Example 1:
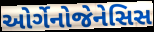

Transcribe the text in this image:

ઓર્ગેનોજેનેસિસ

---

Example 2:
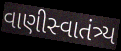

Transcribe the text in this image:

વાણીસ્વાતંત્ર્ય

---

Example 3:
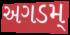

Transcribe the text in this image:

અગડમ્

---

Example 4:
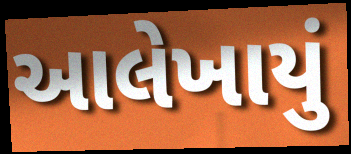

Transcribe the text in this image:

આલેખાયું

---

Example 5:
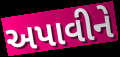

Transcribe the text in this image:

અપાવીને